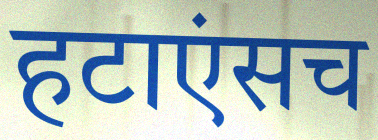
हटाएंसच